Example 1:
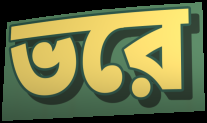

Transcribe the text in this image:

ভরে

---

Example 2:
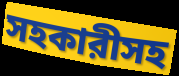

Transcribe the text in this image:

সহকারীসহ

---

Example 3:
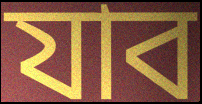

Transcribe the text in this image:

যাব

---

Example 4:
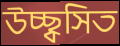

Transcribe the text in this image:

উচ্ছ্বসিত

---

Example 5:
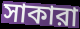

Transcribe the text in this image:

সাকারা